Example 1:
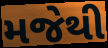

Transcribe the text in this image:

મજેથી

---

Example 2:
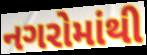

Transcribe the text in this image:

નગરોમાંથી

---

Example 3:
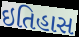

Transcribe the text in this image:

ઇતિહાસ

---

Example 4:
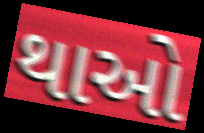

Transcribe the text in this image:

થાઓ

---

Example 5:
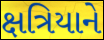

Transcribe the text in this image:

ક્ષત્રિયાને